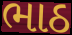
ભાઠ